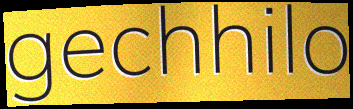
gechhilo